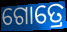
ଗୋତ୍ରେ